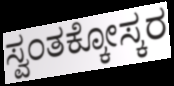
ಸ್ವಂತಕ್ಕೋಸ್ಕರ